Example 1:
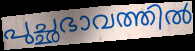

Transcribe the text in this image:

പുച്ഛഭാവത്തിൽ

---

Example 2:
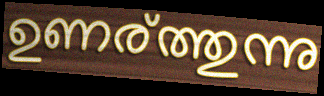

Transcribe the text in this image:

ഉണര്ത്തുന്നു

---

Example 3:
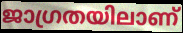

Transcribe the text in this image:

ജാഗ്രതയിലാണ്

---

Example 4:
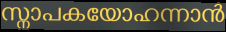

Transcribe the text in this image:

സ്നാപകയോഹന്നാൻ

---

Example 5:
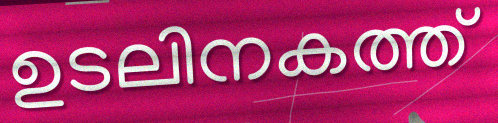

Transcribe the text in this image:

ഉടലിനകത്ത്